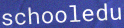
schooledu